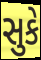
સુકે